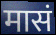
मासं